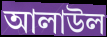
আলাউল